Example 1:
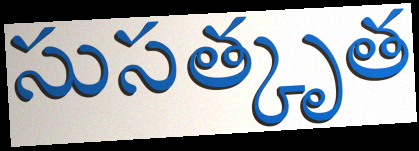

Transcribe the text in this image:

సుసత్కృత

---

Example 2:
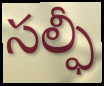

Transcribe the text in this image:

సల్ఫీ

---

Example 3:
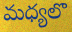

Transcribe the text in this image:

మధ్యలొ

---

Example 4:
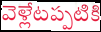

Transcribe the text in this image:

వెళ్లేటప్పటికి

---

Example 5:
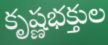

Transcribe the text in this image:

కృష్ణభక్తుల